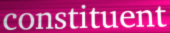
constituent